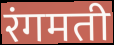
रंगमती